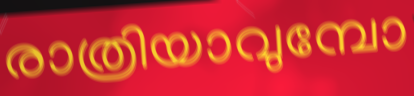
രാത്രിയാവുമ്പോ